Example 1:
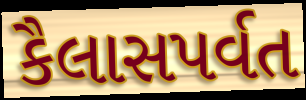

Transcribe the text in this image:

કૈલાસપર્વત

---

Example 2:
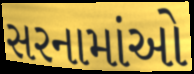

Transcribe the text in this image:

સરનામાંઓ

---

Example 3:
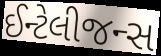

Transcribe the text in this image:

ઈન્ટેલીજન્સ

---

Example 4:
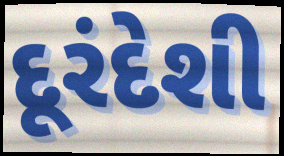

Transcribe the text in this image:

દૂરંદેશી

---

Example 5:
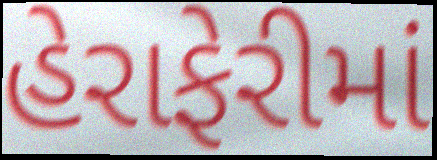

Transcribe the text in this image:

હેરાફેરીમાં